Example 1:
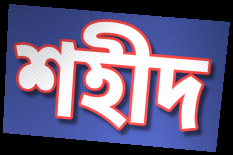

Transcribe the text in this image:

শহীদ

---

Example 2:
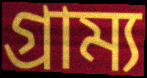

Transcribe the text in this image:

গ্ৰাম্য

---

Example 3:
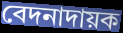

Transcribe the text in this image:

বেদনাদায়ক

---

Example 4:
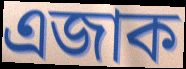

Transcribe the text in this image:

এজাক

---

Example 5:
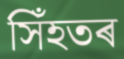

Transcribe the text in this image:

সিঁহতৰ